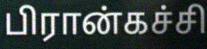
பிரான்கச்சி